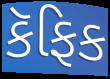
કૅફિક